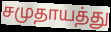
சமுதாயத்து